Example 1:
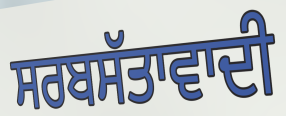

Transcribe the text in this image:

ਸਰਬਸੱਤਾਵਾਦੀ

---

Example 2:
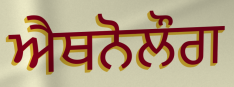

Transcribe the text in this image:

ਐਥਨੋਲੌਗ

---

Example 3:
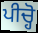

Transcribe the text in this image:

ਪੀਚ੍ਹੋ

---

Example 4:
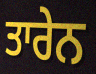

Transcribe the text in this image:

ਤਾਰੇਨ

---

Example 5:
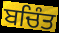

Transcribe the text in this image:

ਬਚਿੰਤ